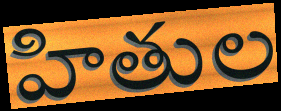
హితుల